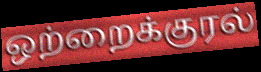
ஒற்றைக்குரல்